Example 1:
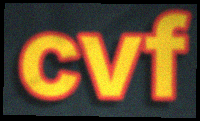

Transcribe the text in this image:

cvf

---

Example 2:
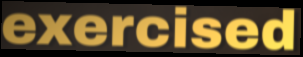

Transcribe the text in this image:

exercised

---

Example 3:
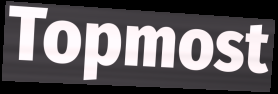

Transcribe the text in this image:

Topmost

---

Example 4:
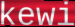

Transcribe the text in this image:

kewi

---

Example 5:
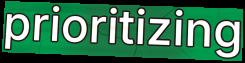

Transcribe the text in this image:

prioritizing